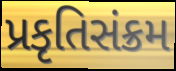
પ્રકૃતિસંક્રમ